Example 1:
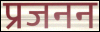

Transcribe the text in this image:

प्रजनन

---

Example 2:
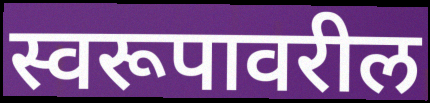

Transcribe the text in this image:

स्वरूपावरील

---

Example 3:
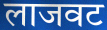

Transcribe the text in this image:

लाजवट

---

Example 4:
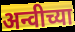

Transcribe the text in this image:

अन्वीच्या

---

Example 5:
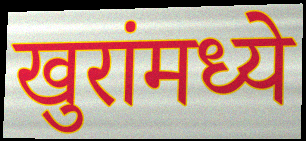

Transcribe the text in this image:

खुरांमध्ये